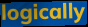
logically